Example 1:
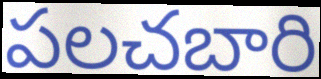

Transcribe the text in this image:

పలచబారి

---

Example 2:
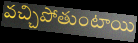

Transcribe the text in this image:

వచ్చిపోతుంటాయి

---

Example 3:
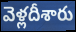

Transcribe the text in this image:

వెళ్లదీశారు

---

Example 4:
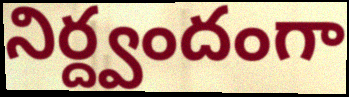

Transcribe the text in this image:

నిర్ద్వందంగా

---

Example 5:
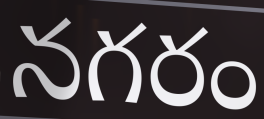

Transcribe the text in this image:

నగరం